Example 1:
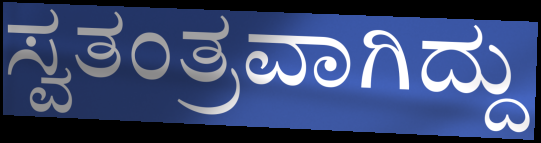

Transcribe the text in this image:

ಸ್ವತಂತ್ರವಾಗಿದ್ದು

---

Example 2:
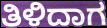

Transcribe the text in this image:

ತಿಳಿದಾಗ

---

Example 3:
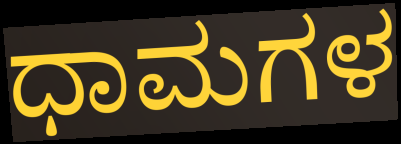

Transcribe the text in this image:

ಧಾಮಗಳ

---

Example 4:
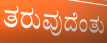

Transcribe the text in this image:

ತರುವುದೆಂತು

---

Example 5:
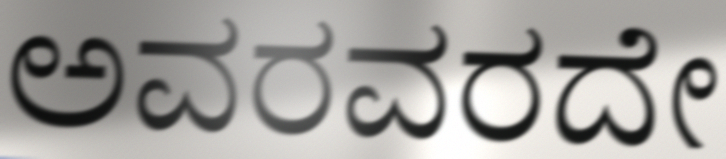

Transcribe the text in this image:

ಅವರವರದೇ